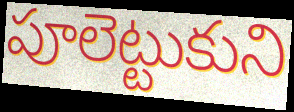
పూలెట్టుకుని